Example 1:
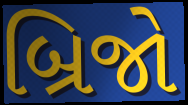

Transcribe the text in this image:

બ્રિજો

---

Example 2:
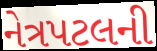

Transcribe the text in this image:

નેત્રપટલની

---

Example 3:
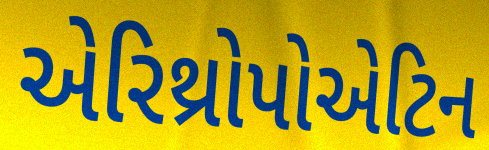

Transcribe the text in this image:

એરિથ્રોપોએટિન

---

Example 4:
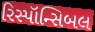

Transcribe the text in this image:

રિસ્પૉન્સિબલ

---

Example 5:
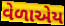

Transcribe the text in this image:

વેળાએય